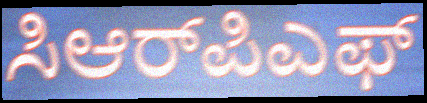
ಸಿಆರ್‌ಪಿಎಫ್